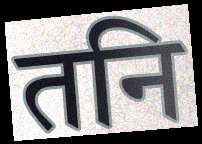
तनि